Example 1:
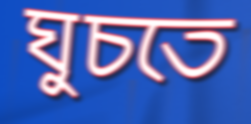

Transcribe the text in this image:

ঘুচতে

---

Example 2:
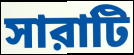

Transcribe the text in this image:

সারাটি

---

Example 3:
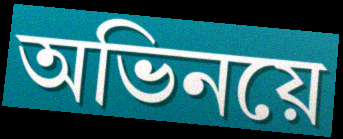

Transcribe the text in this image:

অভিনয়ে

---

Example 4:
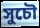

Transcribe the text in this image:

সুচৌ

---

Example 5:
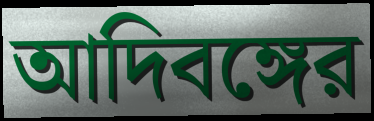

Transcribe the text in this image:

আদিবঙ্গের